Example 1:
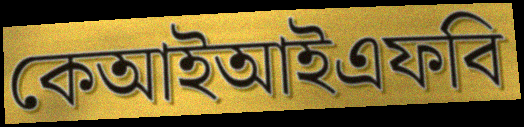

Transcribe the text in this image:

কেআইআইএফবি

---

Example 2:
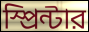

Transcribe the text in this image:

স্প্রিন্টার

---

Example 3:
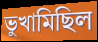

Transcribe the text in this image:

ভুখামিছিল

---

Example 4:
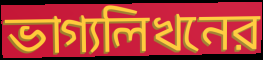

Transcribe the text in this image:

ভাগ্যলিখনের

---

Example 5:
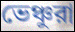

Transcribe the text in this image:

ভেঞ্চুরা